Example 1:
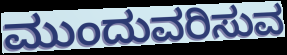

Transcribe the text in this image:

ಮುಂದುವರಿಸುವ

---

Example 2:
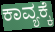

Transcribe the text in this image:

ಕಾವ್ಯಕ್ಕೆ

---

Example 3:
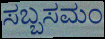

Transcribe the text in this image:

ಸಬ್ಬಸಮಂ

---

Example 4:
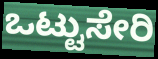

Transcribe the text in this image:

ಒಟ್ಟುಸೇರಿ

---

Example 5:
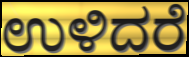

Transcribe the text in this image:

ಉಳಿದರೆ